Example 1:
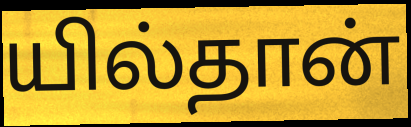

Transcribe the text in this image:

யில்தான்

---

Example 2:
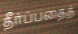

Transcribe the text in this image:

தீர்ப்பதைத்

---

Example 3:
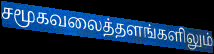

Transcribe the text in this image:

சமூகவலைத்தளங்களிலும்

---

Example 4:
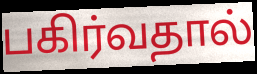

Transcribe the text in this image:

பகிர்வதால்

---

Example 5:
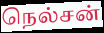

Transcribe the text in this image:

நெல்சன்